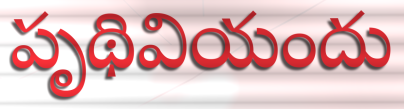
పృథివియందు